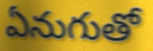
ఏనుగుతో